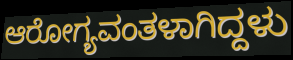
ಆರೋಗ್ಯವಂತಳಾಗಿದ್ದಳು